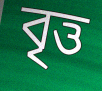
বৃত্ত